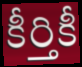
కీర్తికీ